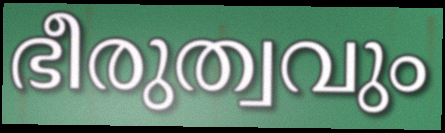
ഭീരുത്വവും